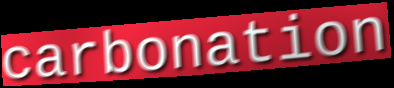
carbonation